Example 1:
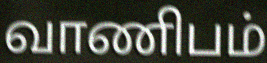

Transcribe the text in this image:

வாணிபம்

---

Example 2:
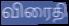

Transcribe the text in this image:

விரைதி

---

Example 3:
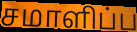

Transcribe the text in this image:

சமாளிப்ப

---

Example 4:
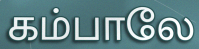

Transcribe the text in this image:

கம்பாலே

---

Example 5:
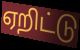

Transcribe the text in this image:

ஏறிட்டு